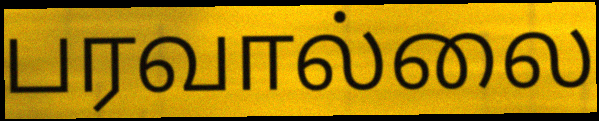
பரவால்லை